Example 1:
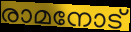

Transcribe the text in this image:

രാമനോട്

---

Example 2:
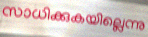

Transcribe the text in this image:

സാധിക്കുകയില്ലെന്നു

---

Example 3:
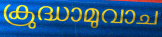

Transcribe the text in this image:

ക്രുദ്ധാമുവാച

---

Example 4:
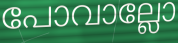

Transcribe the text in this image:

പോവാല്ലോ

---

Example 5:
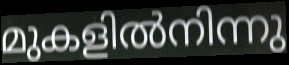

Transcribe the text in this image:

മുകളിൽനിന്നു